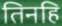
तिनहि